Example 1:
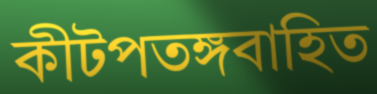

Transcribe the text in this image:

কীটপতঙ্গবাহিত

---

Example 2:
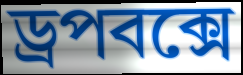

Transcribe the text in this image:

ড্রপবক্সে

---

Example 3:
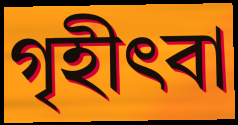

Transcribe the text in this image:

গৃহীৎবা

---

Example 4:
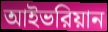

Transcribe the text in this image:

আইভরিয়ান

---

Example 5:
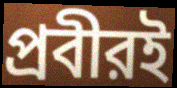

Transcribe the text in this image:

প্রবীরই